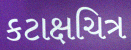
કટાક્ષચિત્ર